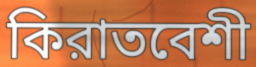
কিরাতবেশী